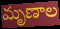
మృణాల